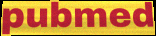
pubmed